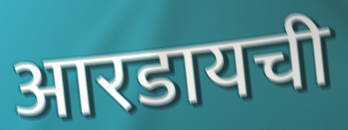
आरडायची